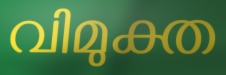
വിമുക്ത